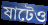
ষাটেও